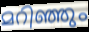
മറിഞ്ഞും